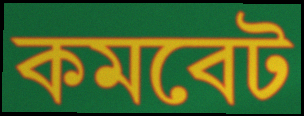
কমবেট